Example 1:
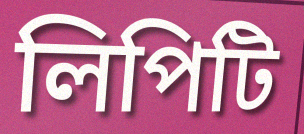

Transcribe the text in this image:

লিপিটি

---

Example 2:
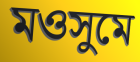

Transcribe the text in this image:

মওসুমে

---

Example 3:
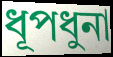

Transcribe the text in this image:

ধূপধুনা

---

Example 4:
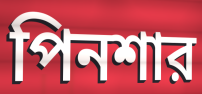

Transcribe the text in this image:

পিনশার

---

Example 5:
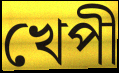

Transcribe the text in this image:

খেপী